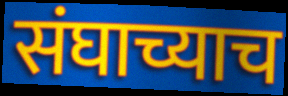
संघाच्याच